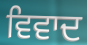
ਵਿਵਾਦ